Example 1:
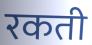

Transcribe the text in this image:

रकती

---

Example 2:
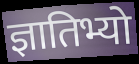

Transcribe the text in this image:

ज्ञातिभ्यो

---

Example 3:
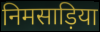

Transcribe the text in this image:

निमसाड़िया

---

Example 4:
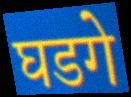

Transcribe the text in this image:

घडगे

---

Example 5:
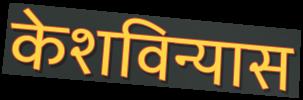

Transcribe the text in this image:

केशविन्यास